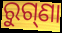
ରୁଗ୍‌ଣା